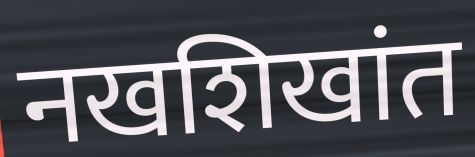
नखशिखांत